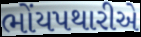
ભોંયપથારીએ